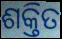
ଶକ୍ତିତ